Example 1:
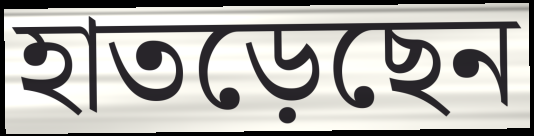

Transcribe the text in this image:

হাতড়েছেন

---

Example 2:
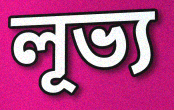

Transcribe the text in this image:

লূভ্য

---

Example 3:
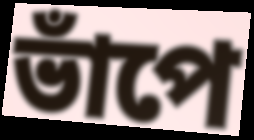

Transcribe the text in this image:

ভাঁপে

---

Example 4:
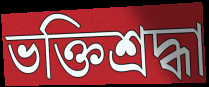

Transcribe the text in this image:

ভক্তিশ্রদ্ধা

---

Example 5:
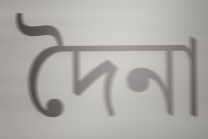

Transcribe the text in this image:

দৈনা